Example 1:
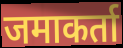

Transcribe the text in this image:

जमाकर्ता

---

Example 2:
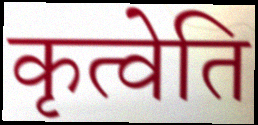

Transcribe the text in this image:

कृत्वेति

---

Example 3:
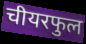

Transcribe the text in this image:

चीयरफुल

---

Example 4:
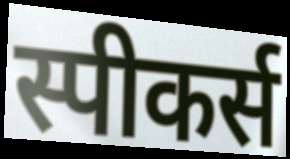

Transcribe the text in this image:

स्पीकर्स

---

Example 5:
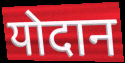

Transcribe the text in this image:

योदान